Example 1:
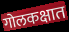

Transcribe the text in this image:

गोलकक्षात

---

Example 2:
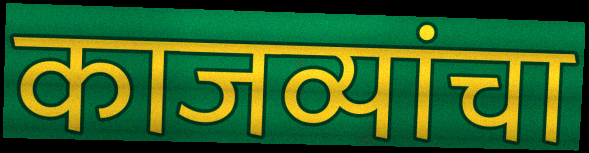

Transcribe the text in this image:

काजव्यांचा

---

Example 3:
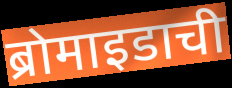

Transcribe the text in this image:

ब्रोमाइडाची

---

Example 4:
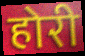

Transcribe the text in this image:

होरी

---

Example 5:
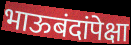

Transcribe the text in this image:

भाऊबंदांपेक्षा